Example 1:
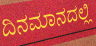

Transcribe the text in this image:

ದಿನಮಾನದಲ್ಲಿ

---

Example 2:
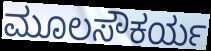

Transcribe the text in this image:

ಮೂಲಸೌಕರ್ಯ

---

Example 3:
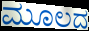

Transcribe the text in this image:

ಮೂಲದ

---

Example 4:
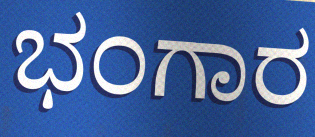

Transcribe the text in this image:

ಭಂಗಾರ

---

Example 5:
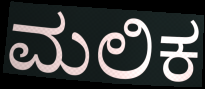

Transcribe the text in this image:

ಮಲಿಕ